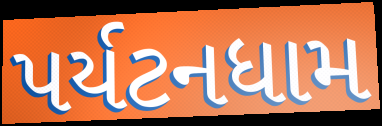
પર્યટનધામ